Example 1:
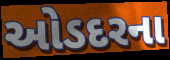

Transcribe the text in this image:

ઓડદરના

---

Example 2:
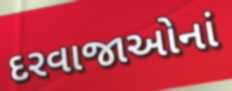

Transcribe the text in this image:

દરવાજાઓનાં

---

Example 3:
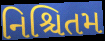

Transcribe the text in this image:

નિશ્ચિતમ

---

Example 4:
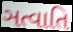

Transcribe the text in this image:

ઞત્વાતિ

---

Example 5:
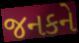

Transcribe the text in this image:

જનકને